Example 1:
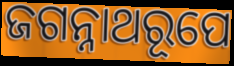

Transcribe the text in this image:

ଜଗନ୍ନାଥରୂପେ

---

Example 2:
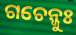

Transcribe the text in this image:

ଗଚେନ୍ଜୁଃ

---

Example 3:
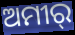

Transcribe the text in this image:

ଅମୀର୍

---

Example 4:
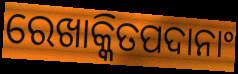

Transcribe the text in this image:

ରେଖାକ୍କିତପଦାନାଂ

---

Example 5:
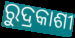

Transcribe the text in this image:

ରୁଦ୍ରକାଶୀ